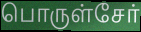
பொருள்சேர்